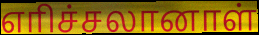
எரிச்சலானாள்